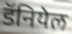
डॅनियेल